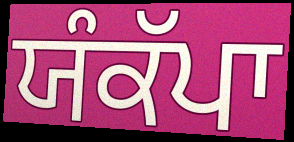
ਯੰਕੱਪਾ